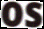
os